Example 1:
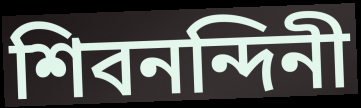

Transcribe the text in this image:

শিবনন্দিনী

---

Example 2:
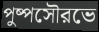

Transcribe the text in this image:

পুষ্পসৌরভে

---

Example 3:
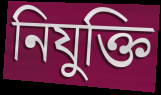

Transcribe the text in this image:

নিযুক্তি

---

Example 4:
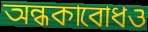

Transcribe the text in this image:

অন্ধকাবোধও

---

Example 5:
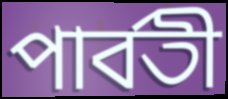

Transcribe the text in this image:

পার্বতী